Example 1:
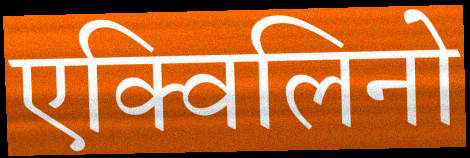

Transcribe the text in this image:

एक्विलिनो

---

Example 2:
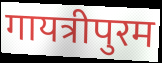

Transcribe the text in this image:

गायत्रीपुरम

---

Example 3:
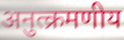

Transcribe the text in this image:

अनुत्क्रमणीय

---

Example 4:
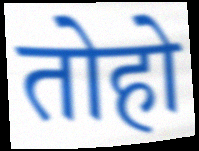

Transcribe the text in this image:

तोहो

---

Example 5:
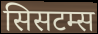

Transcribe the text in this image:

सिसटम्स